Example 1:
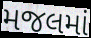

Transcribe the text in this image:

મજલમાં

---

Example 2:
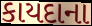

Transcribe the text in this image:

કાયદાના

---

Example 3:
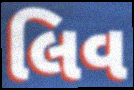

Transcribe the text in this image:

લિવ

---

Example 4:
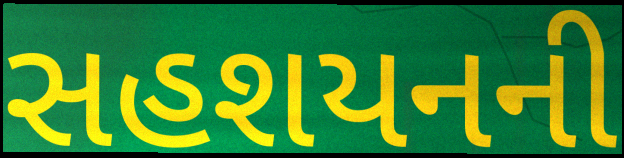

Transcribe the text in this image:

સહશયનની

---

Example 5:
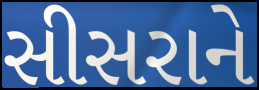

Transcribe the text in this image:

સીસરાને